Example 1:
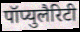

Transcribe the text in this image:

पॉप्युलैरिटी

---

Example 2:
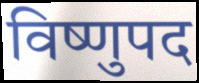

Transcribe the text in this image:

विष्‍णुपद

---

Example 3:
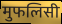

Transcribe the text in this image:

मुफलिसी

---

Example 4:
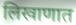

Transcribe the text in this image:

लिखाणात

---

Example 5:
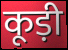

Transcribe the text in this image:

कूड़ी